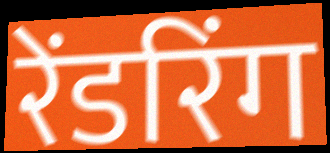
रेंडरिंग